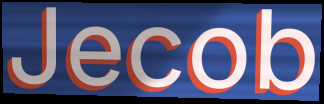
Jecob